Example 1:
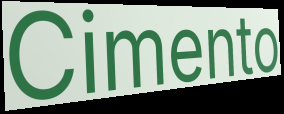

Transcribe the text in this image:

Cimento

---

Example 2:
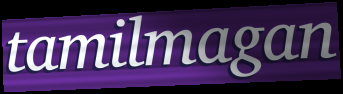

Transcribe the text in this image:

tamilmagan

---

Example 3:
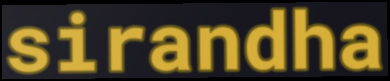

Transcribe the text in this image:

sirandha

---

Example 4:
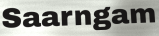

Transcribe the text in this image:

Saarngam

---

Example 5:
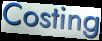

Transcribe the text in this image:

Costing